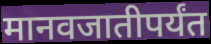
मानवजातीपर्यंत